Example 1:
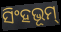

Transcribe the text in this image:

ସିଂହଭୂମ୍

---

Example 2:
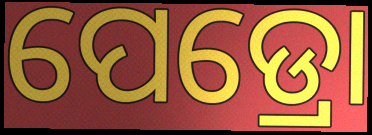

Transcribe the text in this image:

ପେଡ୍ରୋ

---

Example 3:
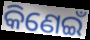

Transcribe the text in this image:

କିଣେଇଁ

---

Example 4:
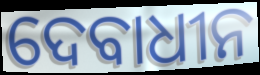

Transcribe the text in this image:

ଦେବାଧୀନ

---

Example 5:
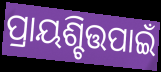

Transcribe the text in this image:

ପ୍ରାୟଶ୍ଚିତ୍ତପାଇଁ